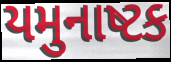
યમુનાષ્ટક